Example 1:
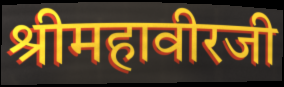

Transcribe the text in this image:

श्रीमहावीरजी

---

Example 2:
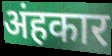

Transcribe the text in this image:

अंहकार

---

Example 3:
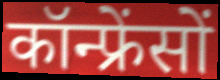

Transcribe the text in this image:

कॉन्फ्रेंसों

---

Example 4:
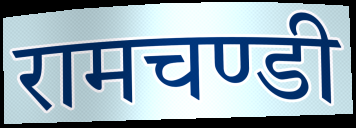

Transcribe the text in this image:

रामचण्डी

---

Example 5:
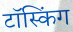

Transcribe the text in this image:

टॉस्किंग